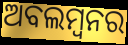
ଅବଲମ୍ବନର